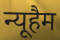
न्यूहैम